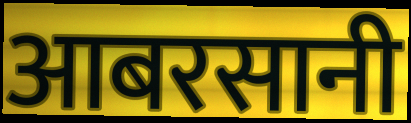
आबरसानी